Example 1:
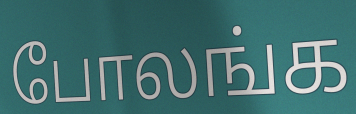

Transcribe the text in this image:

போலங்க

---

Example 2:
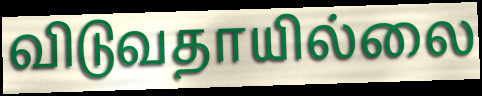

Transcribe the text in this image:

விடுவதாயில்லை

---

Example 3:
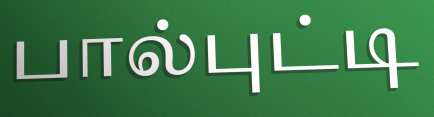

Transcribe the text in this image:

பால்புட்டி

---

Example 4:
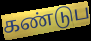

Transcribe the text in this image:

கண்டுப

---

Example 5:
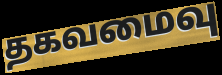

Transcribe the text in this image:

தகவமைவு